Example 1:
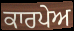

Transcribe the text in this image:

ਕਾਰਪੇਅ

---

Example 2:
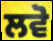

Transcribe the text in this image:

ਲਵੋ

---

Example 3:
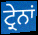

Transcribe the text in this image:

ਟ੍ਰੇਨਾਂ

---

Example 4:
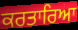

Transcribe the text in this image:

ਕਰਤਾਰਿਆ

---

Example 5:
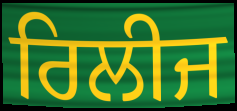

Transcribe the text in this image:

ਰਿਲੀਜ